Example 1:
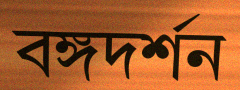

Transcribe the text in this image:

বঙ্গদর্শন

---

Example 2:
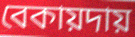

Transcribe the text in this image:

বেকায়দায়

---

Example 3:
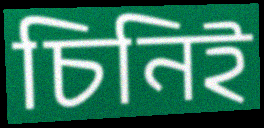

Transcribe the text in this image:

চিনিই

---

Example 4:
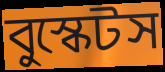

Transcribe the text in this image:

বুস্কেটস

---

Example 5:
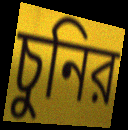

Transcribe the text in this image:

চুনির